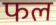
फल